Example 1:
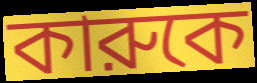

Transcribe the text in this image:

কারুকে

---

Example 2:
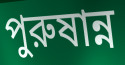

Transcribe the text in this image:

পুরুষান্ন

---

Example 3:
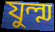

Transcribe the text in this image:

যুল্ম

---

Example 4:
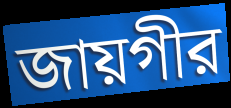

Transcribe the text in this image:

জায়গীর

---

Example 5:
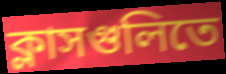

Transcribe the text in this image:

ক্লাসগুলিতে